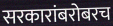
सरकारांबरोबरच